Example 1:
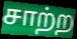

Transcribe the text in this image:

சாற்ற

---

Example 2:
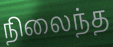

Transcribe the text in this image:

நிலைந்த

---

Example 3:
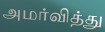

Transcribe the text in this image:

அமர்வித்து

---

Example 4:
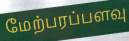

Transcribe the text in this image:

மேற்பரப்பளவு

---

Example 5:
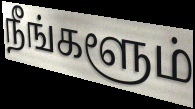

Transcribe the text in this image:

நீங்களூம்